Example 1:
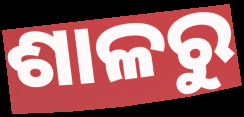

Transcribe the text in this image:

ଶାଳରୁ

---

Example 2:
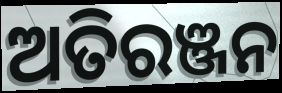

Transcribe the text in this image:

ଅତିରଞ୍ଜନ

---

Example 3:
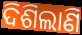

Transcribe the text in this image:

ଦିଶିଲାଣି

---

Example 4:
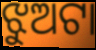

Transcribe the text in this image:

ଝୁଅଟା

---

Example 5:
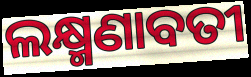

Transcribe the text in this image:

ଲକ୍ଷ୍ମଣାବତୀ